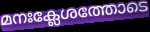
മനഃക്ലേശത്തോടെ